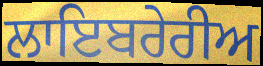
ਲਾਇਬਰੇਰੀਅ